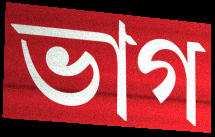
ভাগ